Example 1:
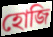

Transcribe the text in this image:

হোজি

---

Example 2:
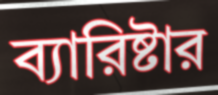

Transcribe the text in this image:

ব্যারিষ্টার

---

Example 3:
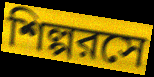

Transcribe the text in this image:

শিল্পরসে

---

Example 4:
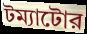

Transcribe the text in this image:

টম্যাটোর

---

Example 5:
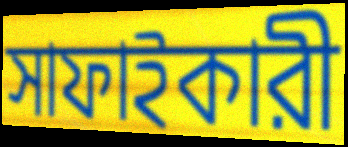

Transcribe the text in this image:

সাফাইকারী